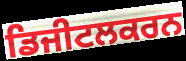
ਡਿਜੀਟਲਕਰਨ